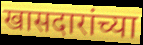
खासदारांच्या